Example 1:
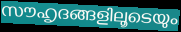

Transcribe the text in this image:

സൗഹൃദങ്ങളിലൂടെയും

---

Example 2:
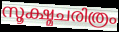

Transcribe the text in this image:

സൂക്ഷ്മചരിത്രം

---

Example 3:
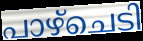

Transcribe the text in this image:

പാഴ്ചെടി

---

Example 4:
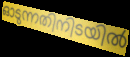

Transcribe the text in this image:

ഓടുന്നതിനിടയിൽ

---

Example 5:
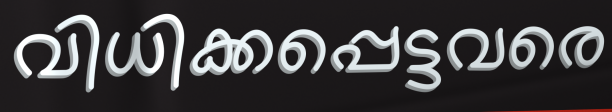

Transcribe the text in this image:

വിധിക്കപ്പെട്ടവരെ